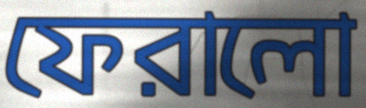
ফেরালো